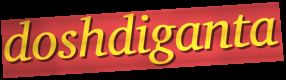
doshdiganta